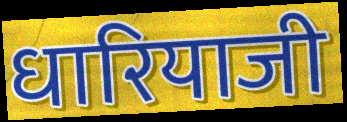
धारियाजी